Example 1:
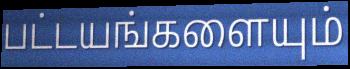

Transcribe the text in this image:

பட்டயங்களையும்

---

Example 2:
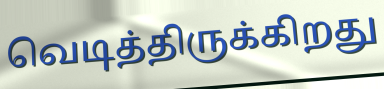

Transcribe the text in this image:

வெடித்திருக்கிறது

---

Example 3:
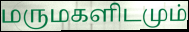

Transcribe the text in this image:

மருமகளிடமும்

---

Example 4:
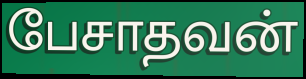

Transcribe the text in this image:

பேசாதவன்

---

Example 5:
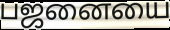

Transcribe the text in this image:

பஜனையை